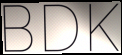
BDK